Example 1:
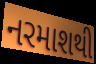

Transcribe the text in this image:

નરમાશથી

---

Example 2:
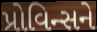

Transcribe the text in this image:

પ્રોવિન્સને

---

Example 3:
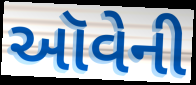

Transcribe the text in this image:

ઑવેની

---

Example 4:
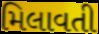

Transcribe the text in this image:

મિલાવતી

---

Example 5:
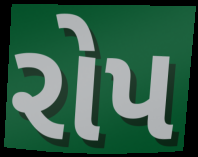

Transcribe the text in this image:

રોપ